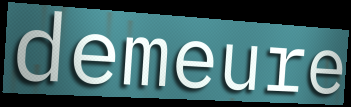
demeure